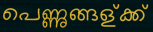
പെണ്ണുങ്ങള്ക്ക്